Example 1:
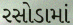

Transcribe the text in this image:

રસોડામાં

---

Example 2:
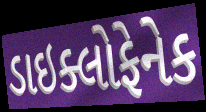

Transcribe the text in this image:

ડાઇક્લોફેનેક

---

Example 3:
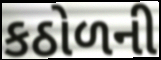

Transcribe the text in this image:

કઠોળની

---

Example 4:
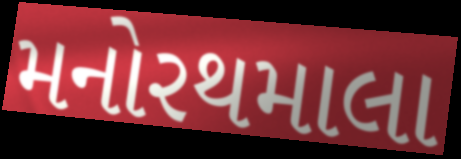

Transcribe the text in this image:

મનોરથમાલા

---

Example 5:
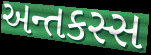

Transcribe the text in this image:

અન્તકસ્સ